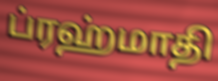
ப்ரஹ்மாதி